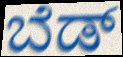
ಬೆಡ್